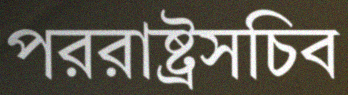
পররাষ্ট্রসচিব